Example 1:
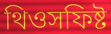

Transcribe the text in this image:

থিওসফিষ্ট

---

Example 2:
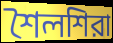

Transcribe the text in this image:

শৈলশিরা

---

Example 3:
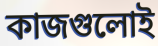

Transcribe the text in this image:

কাজগুলোই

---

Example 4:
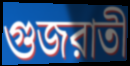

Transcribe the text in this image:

গুজরাতী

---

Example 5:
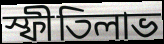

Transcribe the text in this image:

স্ফীতিলাভ